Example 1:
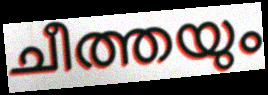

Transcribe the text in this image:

ചീത്തയും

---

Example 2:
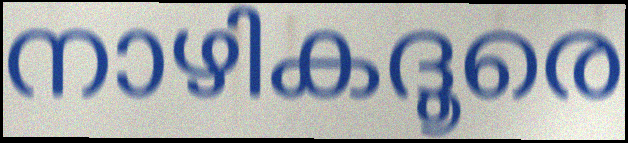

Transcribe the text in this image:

നാഴികദൂരെ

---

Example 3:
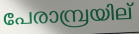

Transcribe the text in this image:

പേരാമ്പ്രയില്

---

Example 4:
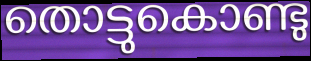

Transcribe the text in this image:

തൊട്ടുകൊണ്ടു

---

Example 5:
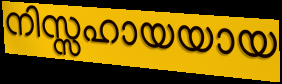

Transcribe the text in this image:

നിസ്സഹായയായ